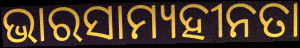
ଭାରସାମ୍ୟହୀନତା